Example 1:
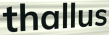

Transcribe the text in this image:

thallus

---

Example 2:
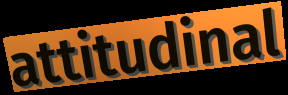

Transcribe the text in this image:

attitudinal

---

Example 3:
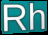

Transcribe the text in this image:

Rh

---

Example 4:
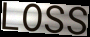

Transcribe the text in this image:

LOSS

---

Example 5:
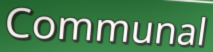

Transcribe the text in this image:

Communal